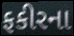
ફકીરના